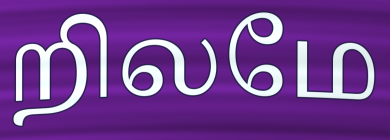
றிலமே